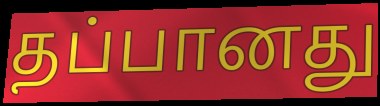
தப்பானது